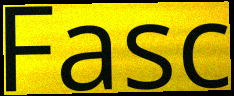
Fasc